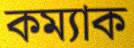
কম্যাক